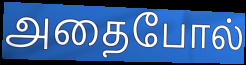
அதைபோல்